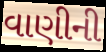
વાણીની